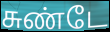
சுண்டே